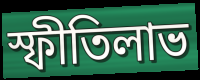
স্ফীতিলাভ